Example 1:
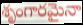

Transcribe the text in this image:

శృంగారమైనా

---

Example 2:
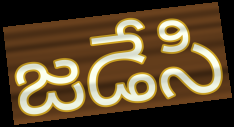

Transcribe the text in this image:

జడేసి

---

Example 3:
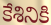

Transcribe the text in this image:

కేశినికి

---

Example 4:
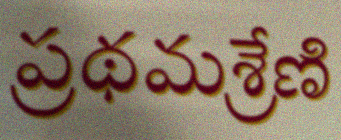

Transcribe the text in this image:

ప్రథమశ్రేణి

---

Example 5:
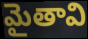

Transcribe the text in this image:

మైతావి